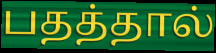
பதத்தால்